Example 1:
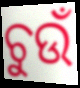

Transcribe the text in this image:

ଚୁଉଁ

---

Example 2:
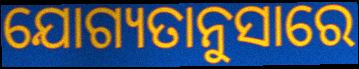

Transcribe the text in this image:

ଯୋଗ୍ୟତାନୁସାରେ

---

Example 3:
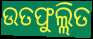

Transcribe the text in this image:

ଉତଫୁଲ୍ଲିତ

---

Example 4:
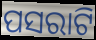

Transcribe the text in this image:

ପସରାଟି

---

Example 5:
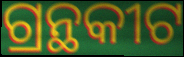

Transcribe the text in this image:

ଗ୍ରନ୍ଥକୀଟ